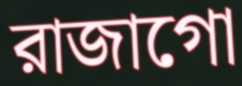
রাজাগো